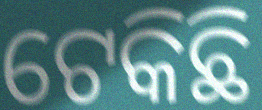
ଟେକିଛି